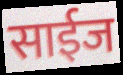
साईज